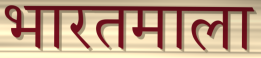
भारतमाला